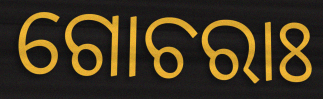
ଗୋଚରାଃ